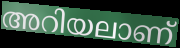
അറിയലാണ്